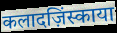
कलादज़िंस्काया